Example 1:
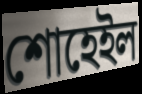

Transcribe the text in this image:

শোহেইল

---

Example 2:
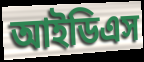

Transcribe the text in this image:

আইডিএস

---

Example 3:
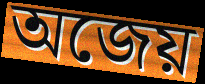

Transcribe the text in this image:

অজেয়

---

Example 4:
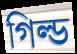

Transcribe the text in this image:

গিল্ড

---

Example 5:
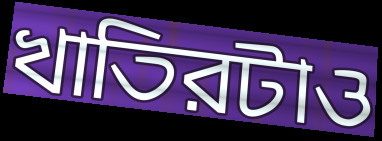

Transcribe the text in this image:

খাতিরটাও